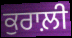
ਕੁਰਾਲ਼ੀ